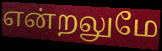
என்றலுமே